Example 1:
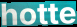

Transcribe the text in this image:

hotte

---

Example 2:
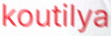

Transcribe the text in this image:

koutilya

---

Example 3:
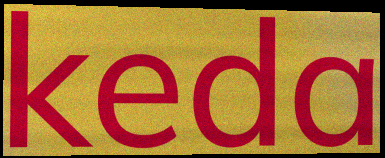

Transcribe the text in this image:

keda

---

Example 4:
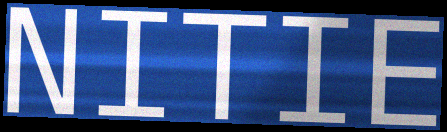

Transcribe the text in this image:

NITIE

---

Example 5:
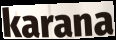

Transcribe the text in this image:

karana